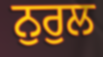
ਨੁਰੁਲ